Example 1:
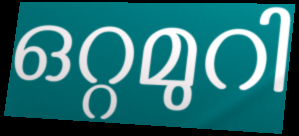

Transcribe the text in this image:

ഒറ്റമുറി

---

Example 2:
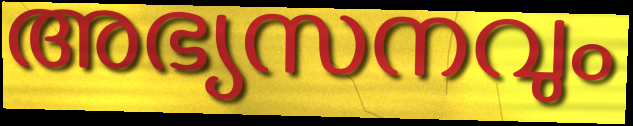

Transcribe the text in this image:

അഭ്യസനവും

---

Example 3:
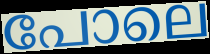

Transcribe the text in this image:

പോലെ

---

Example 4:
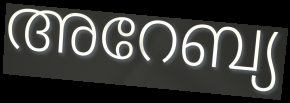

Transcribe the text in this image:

അറേബ്യ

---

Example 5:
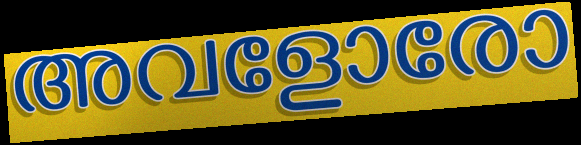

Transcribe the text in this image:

അവളോരോ